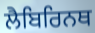
ਲੈਬਿਰਿਨਥ